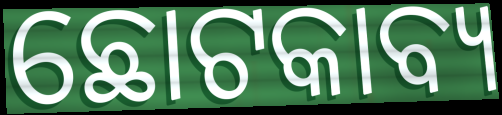
ଛୋଟକାବ୍ୟ